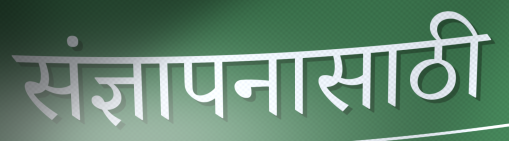
संज्ञापनासाठी